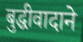
बुद्धीवादाने